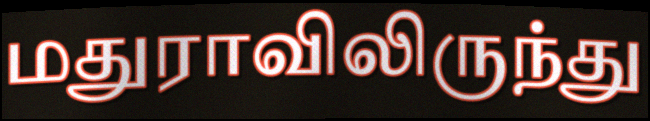
மதுராவிலிருந்து